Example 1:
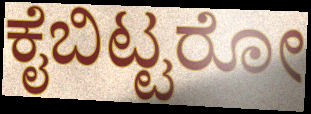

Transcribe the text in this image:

ಕೈಬಿಟ್ಟರೋ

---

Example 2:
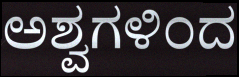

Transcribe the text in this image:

ಅಶ್ವಗಳಿಂದ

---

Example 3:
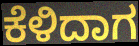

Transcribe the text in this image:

ಕೆಳಿದಾಗ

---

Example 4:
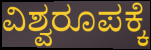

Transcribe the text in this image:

ವಿಶ್ವರೂಪಕ್ಕೆ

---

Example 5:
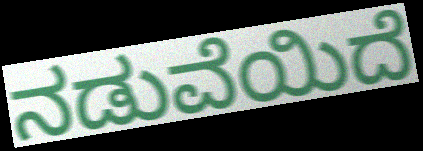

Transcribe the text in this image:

ನಡುವೆಯಿದೆ